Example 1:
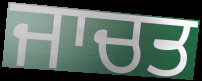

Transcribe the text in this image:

ਜਾਚਤ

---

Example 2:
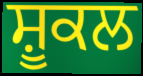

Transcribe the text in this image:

ਸ਼ੂਕਲ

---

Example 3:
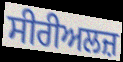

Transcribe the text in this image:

ਸੀਰੀਅਲਜ਼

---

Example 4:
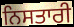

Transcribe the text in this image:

ਨਿਸਤਾਰੀ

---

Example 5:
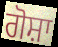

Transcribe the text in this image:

ਗੋਸ਼ਾ